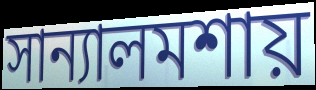
সান্যালমশায়